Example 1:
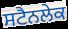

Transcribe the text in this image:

ਸਟੈਨਲੇਕ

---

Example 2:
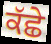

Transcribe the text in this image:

ਕੱਛੇ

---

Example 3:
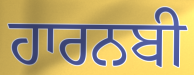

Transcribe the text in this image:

ਹਾਰਨਬੀ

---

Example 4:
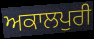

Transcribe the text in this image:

ਅਕਾਲਪੁਰੀ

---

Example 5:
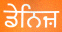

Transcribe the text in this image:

ਡੇਨਿਜ਼